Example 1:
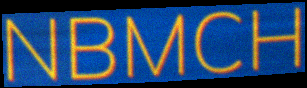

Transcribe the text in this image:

NBMCH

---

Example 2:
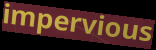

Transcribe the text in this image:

impervious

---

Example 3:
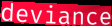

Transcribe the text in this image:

deviance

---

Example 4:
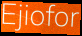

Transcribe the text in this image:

Ejiofor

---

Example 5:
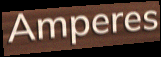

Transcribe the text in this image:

Amperes